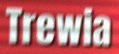
Trewia